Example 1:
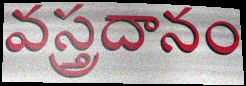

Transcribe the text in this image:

వస్త్రదానం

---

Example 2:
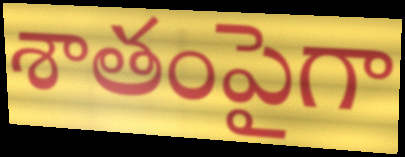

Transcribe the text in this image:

శాతంపైగా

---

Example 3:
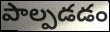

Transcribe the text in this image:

పాల్పడడం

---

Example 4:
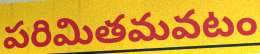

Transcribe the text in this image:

పరిమితమవటం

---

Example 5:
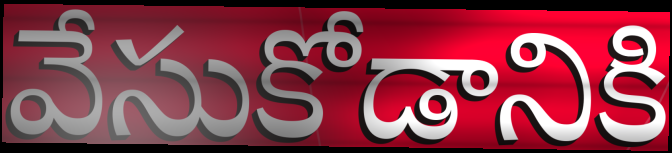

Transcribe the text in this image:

వేసుకోడానికి